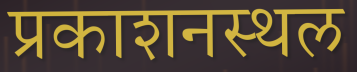
प्रकाशनस्थल